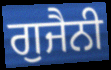
ਗੁਜੈਨੀ